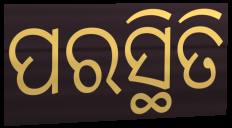
ପରସ୍ଥିତି